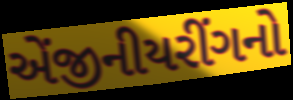
એંજીનીયરીંગનો